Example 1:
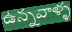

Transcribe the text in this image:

ఉన్నవాళ్ళ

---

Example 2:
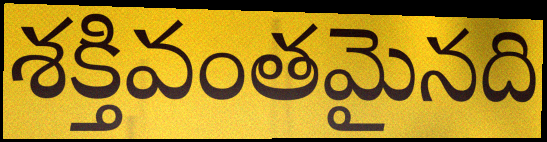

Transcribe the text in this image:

శక్తివంతమైనది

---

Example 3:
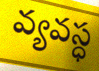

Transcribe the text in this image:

వ్యవస్ధ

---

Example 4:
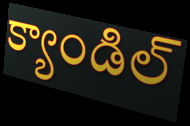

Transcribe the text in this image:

క్యాండిల్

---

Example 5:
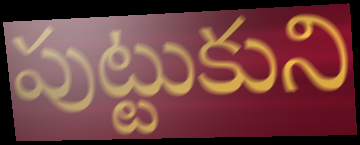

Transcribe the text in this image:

పుట్టుకుని